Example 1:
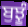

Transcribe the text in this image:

ਬੁਝੂੰ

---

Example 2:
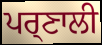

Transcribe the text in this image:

ਪਰ੍ਣਾਲੀ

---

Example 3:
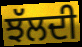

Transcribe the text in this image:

ਝੱਲਦੀ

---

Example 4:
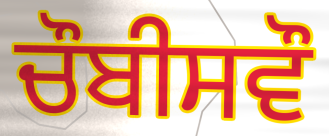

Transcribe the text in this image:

ਚੌਬੀਸਵੌ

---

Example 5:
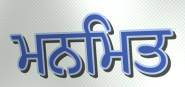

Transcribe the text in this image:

ਮਨਮਿਤ